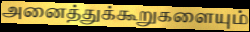
அனைத்துக்கூறுகளையும்